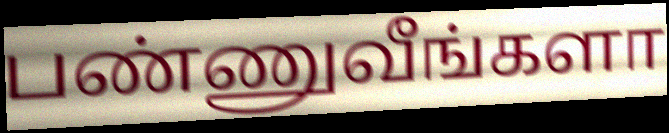
பண்ணுவீங்களா